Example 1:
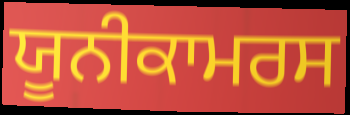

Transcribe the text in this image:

ਯੂਨੀਕਾਮਰਸ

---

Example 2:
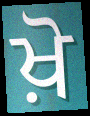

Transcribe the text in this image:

ਖ਼ੋ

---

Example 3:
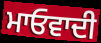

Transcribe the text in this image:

ਮਾਓਵਾਦੀ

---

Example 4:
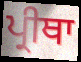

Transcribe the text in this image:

ਪ੍ਰੀਥਾ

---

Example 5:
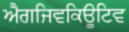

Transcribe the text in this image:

ਐਗਜਿਵਕਿਊਟਿਵ